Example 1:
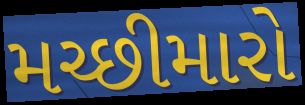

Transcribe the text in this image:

મચ્છીમારો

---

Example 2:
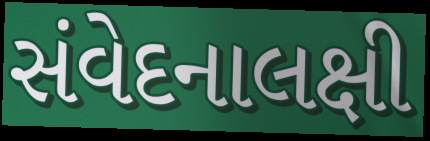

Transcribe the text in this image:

સંવેદનાલક્ષી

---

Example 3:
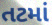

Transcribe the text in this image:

તટમાં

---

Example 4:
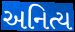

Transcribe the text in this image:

અનિત્ય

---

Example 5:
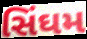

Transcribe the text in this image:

સિંઘમ